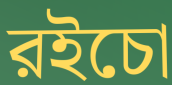
রইচো